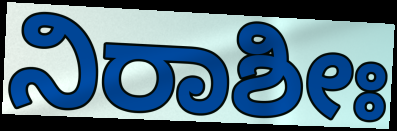
ನಿರಾಶೀಃ